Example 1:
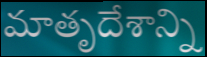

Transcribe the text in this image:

మాతృదేశాన్ని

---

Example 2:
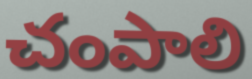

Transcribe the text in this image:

చంపాలి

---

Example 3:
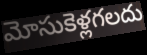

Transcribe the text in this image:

మోసుకెళ్లగలదు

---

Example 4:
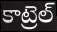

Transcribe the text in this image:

కాట్రెల్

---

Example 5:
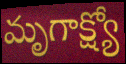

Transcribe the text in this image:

మృగాక్ష్యో